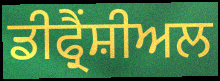
ਡੀਫ੍ਰੈਂਸ਼ੀਅਲ